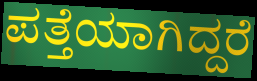
ಪತ್ತೆಯಾಗಿದ್ದರೆ